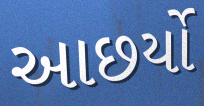
આછર્યો